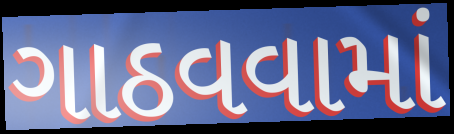
ગાઠવવામાં